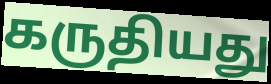
கருதியது